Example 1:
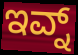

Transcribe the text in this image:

ಇವ್ನ್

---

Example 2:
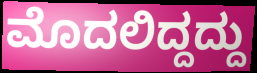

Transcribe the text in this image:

ಮೊದಲಿದ್ದದ್ದು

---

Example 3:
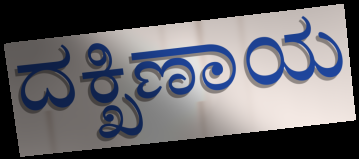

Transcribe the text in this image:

ದಕ್ಖಿಣಾಯ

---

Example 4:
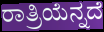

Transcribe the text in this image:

ರಾತ್ರಿಯೆನ್ನದೆ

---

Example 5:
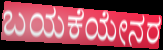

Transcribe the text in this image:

ಬಯಕೆಯೇನರ